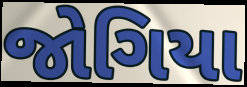
જોગિયા